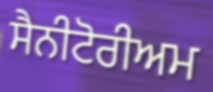
ਸੈਨੀਟੋਰੀਅਮ